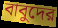
বাবুদের